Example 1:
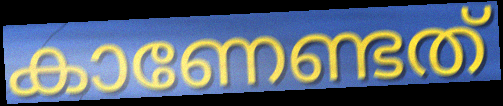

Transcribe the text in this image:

കാണേണ്ടത്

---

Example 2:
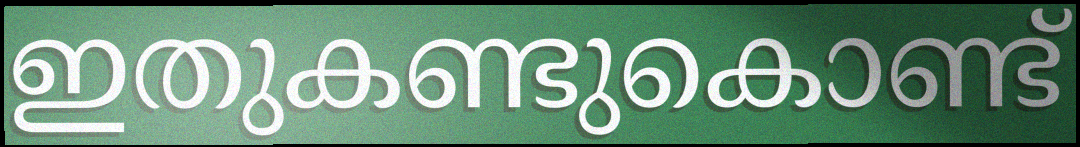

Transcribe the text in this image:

ഇതുകണ്ടുകൊണ്ട്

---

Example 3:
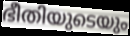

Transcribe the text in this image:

ഭീതിയുടെയും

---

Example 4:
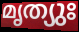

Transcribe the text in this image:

മൃത്യുഃ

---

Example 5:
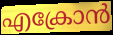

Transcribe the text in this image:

എക്രോൻ